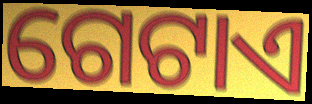
ଗେଟାଏ